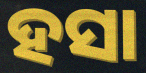
ହସା